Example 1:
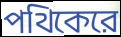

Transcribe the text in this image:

পথিকেরে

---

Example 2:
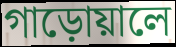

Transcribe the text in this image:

গাড়োয়ালে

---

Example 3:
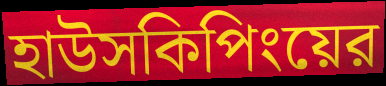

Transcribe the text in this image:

হাউসকিপিংয়ের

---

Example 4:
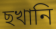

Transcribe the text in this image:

ছখানি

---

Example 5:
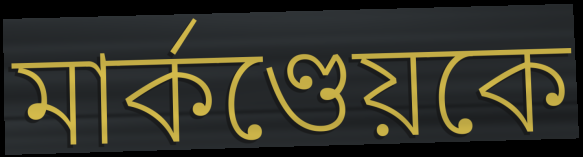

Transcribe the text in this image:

মার্কণ্ডেয়কে